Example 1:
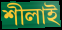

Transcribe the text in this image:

শীলাই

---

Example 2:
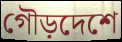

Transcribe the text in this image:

গৌড়দেশে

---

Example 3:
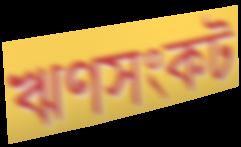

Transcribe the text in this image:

ঋণসংকট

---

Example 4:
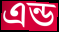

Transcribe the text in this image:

এন্ড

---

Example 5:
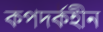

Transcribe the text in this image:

কপদর্কহীন